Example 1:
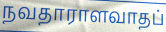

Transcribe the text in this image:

நவதாராளவாதப்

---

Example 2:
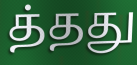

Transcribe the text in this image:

த்தது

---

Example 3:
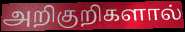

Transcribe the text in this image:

அறிகுறிகளால்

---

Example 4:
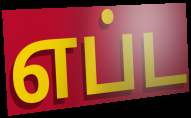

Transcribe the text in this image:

எப்ட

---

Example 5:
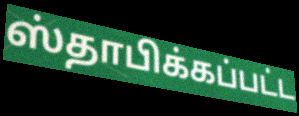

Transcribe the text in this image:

ஸ்தாபிக்கப்பட்ட